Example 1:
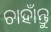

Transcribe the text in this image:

ଚାହାଁନ୍ତୁ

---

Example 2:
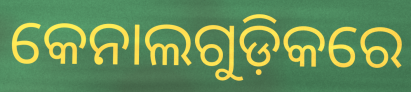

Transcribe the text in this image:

କେନାଲଗୁଡ଼ିକରେ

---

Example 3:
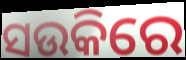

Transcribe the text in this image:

ସଉକିରେ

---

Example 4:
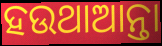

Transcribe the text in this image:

ହଉଥାଆନ୍ତା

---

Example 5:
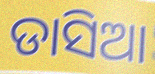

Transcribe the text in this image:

ଡାସିଆ